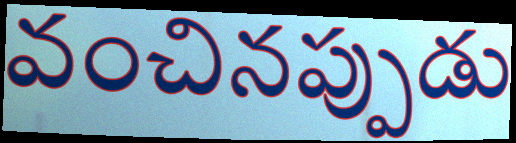
వంచినప్పుడు